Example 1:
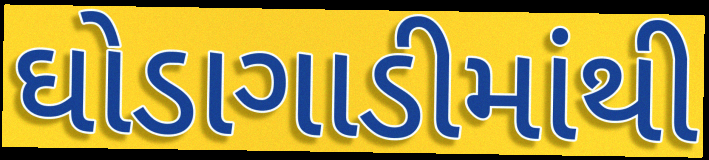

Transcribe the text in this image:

ઘોડાગાડીમાંથી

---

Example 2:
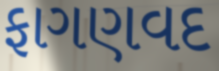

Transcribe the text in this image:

ફાગણવદ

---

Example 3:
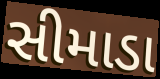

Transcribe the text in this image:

સીમાડા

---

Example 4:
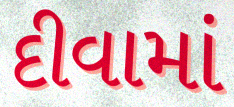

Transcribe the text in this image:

દીવામાં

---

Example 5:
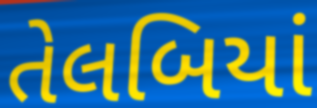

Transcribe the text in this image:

તેલબિયાં